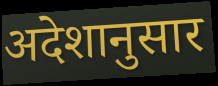
अदेशानुसार